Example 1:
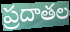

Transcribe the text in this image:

ప్రదాతల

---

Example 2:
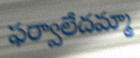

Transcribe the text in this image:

ఫర్వాలేదమ్మా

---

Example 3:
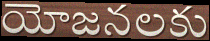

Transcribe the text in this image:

యోజనలకు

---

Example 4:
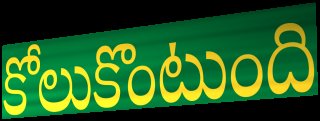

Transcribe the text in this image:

కోలుకొంటుంది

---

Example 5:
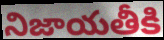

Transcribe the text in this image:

నిజాయతీకి